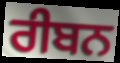
ਰੀਬਨ